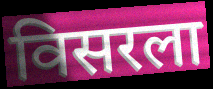
विसरला